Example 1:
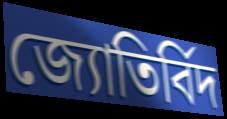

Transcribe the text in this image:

জ্যোতিৰ্বিদ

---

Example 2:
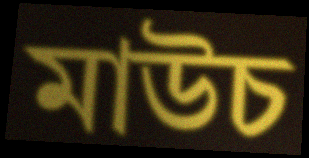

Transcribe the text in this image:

মাউচ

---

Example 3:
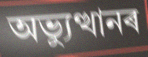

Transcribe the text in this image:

অভ্যুত্থানৰ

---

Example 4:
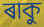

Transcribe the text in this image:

ৰাকু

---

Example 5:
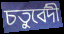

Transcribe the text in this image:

চতুৰ্বেদী